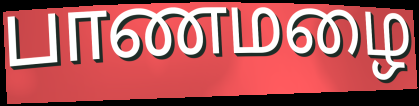
பாணமழை